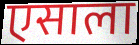
एसाला